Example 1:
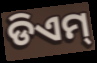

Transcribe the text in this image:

ଡିଏମ୍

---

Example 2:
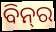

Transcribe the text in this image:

ବିନ୍‍ର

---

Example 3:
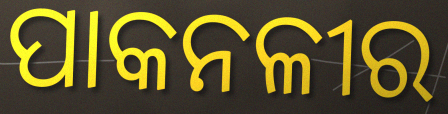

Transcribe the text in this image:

ପାକନଳୀର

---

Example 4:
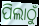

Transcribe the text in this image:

ପିଲାଠୁଁ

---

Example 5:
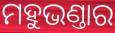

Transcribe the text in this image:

ମହୁଭଣ୍ତାର